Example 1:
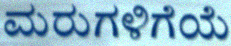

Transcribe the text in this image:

ಮರುಗಳಿಗೆಯೆ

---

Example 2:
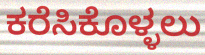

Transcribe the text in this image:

ಕರೆಸಿಕೊಳ್ಳಲು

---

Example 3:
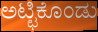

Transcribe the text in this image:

ಅಟ್ಟಿಕೊಂಡು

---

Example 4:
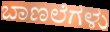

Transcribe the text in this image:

ಬಾಣಲೆಗಳು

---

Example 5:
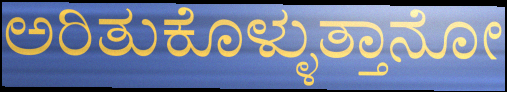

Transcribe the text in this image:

ಅರಿತುಕೊಳ್ಳುತ್ತಾನೋ